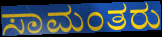
ಸಾಮಂತರು